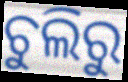
ଚୁଲିରୁ